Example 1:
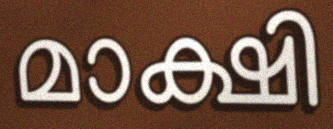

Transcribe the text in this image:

മാക്ഷി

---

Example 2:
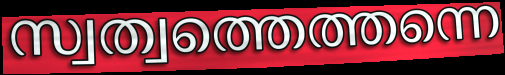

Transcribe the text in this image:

സ്വത്വത്തെത്തന്നെ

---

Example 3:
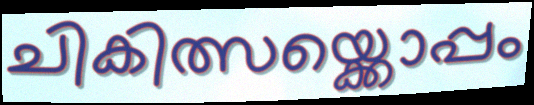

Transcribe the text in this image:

ചികിത്സയ്ക്കൊപ്പം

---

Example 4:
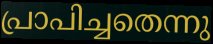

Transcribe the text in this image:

പ്രാപിച്ചതെന്നു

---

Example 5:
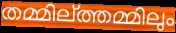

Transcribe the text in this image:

തമ്മില്ത്തമ്മിലും